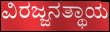
ವಿರಜ್ಜನತ್ಥಾಯ